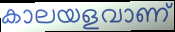
കാലയളവാണ്